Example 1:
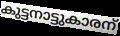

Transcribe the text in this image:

കുട്ടനാട്ടുകാരന്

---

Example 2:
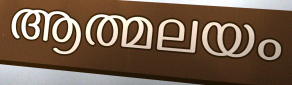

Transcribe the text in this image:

ആത്മലയം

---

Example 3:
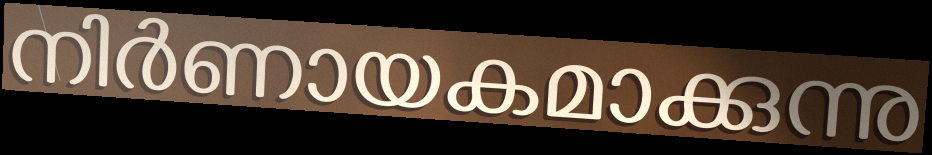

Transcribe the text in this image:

നിർണായകമാക്കുന്നു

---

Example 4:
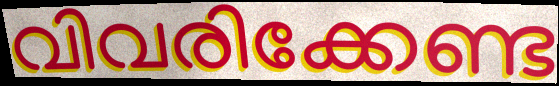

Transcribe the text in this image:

വിവരിക്കേണ്ട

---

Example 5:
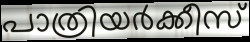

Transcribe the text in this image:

പാത്രിയർക്കീസ്